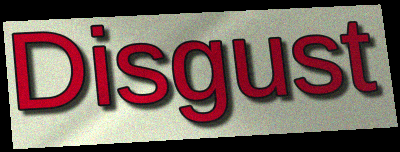
Disgust